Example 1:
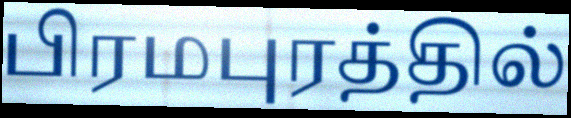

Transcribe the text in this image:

பிரமபுரத்தில்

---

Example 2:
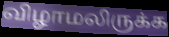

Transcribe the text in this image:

விழாமலிருக்க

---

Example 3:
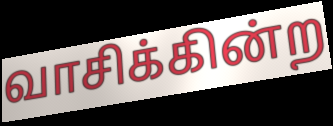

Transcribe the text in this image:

வாசிக்கின்ற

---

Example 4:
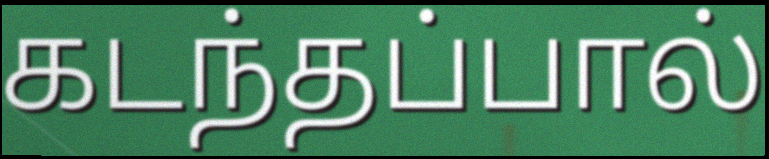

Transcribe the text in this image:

கடந்தப்பால்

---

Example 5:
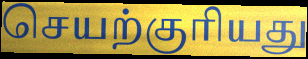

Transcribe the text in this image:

செயற்குரியது